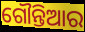
ଗୌନ୍ତିଆର